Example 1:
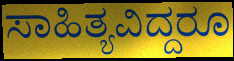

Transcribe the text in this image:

ಸಾಹಿತ್ಯವಿದ್ದರೂ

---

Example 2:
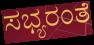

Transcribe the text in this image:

ಸಭ್ಯರಂತೆ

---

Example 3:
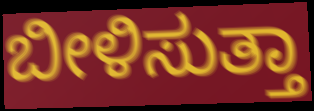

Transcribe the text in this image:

ಬೀಳಿಸುತ್ತಾ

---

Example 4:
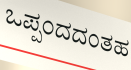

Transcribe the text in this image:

ಒಪ್ಪಂದದಂತಹ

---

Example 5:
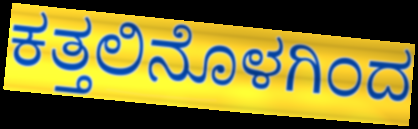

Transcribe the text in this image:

ಕತ್ತಲಿನೊಳಗಿಂದ